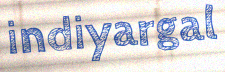
indiyargal